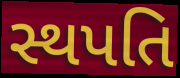
સ્થપતિ